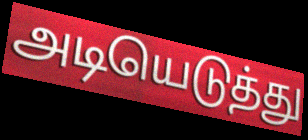
அடியெடுத்து